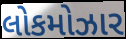
લોકમોઝાર